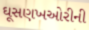
ઘૂસણખઓરીની